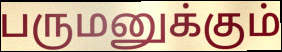
பருமனுக்கும்